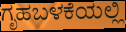
ಗೃಹಬಳಕೆಯಲ್ಲಿ